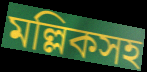
মল্লিকসহ